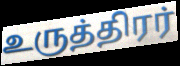
உருத்திரர்